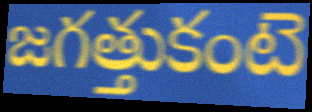
జగత్తుకంటె